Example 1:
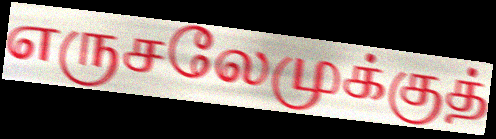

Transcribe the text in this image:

எருசலேமுக்குத்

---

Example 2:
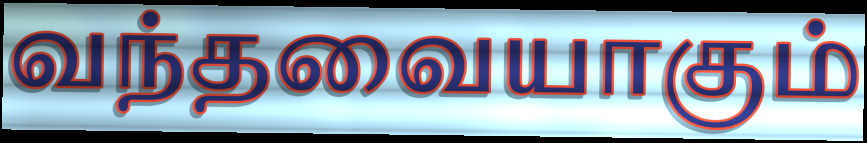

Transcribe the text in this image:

வந்தவையாகும்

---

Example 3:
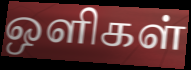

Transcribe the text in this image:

ஒளிகள்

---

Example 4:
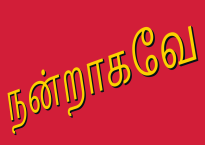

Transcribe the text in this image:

நன்றாகவே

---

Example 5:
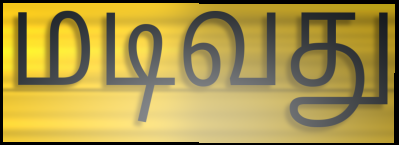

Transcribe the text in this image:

மடிவது